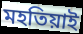
মহতিয়াই